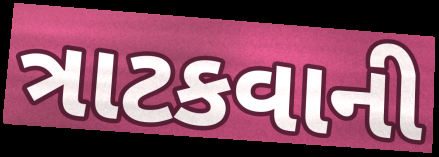
ત્રાટકવાની